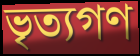
ভৃত্যগণ